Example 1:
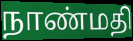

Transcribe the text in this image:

நாண்மதி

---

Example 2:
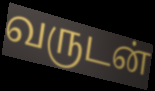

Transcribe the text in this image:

வருடன்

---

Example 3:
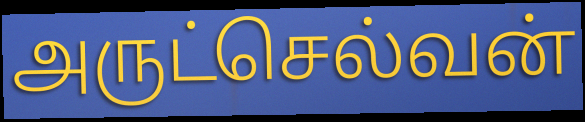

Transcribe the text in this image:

அருட்செல்வன்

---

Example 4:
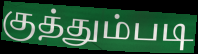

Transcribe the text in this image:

குத்தும்படி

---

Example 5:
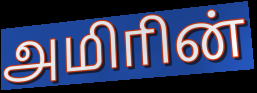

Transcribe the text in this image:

அமிரின்